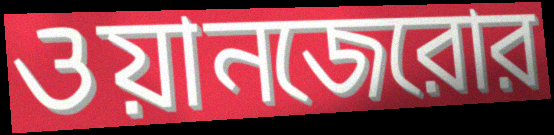
ওয়ানজেরোর